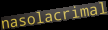
nasolacrimal